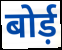
बोर्ड़